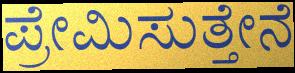
ಪ್ರೇಮಿಸುತ್ತೇನೆ